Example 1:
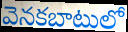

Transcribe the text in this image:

వెనకబాటులో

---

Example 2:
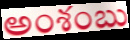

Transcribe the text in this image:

అంశంబు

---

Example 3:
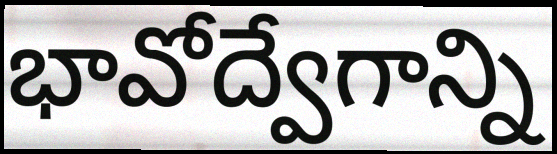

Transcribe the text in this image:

భావోద్వేగాన్ని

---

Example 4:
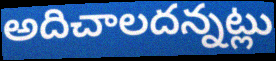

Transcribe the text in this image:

అదిచాలదన్నట్లు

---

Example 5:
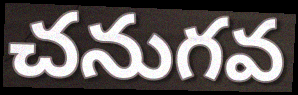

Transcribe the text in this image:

చనుగవ